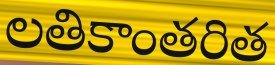
లతికాంతరిత